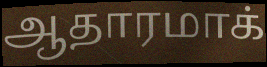
ஆதாரமாக்